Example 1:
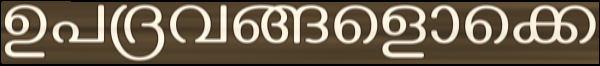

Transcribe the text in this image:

ഉപദ്രവങ്ങളൊക്കെ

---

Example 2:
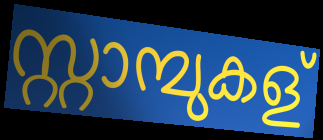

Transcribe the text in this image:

സ്റ്റാമ്പുകള്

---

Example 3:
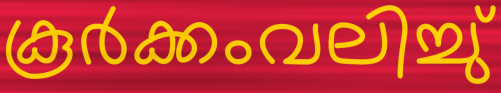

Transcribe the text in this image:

കൂർക്കംവലിച്ചു്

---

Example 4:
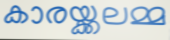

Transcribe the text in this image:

കാരയ്ക്കലമ്മ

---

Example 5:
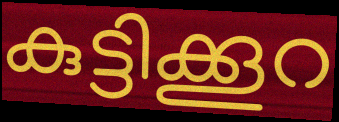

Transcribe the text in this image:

കുട്ടിക്കൂറ